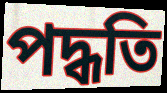
পদ্ধতি